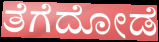
ತೆಗೆದೋಡೆ